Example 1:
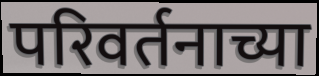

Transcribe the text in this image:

परिवर्तनाच्या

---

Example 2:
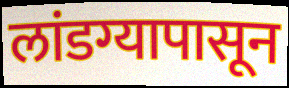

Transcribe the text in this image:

लांडग्यापासून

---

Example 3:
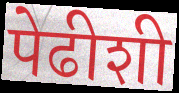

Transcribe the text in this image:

पेढीशी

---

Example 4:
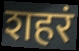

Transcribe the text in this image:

शहरं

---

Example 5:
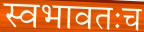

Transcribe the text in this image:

स्वभावतःच